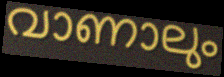
വാണാലും